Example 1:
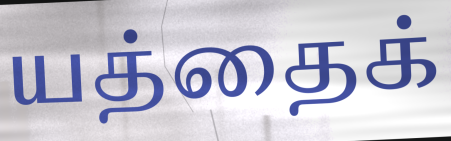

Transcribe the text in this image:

யத்தைக்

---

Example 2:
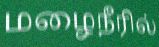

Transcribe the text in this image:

மழைநீரில்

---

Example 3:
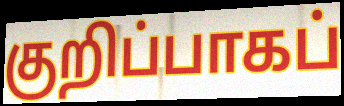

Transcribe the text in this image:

குறிப்பாகப்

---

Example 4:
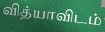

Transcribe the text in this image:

வித்யாவிடம்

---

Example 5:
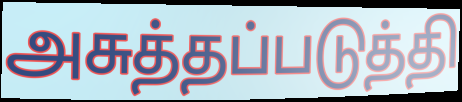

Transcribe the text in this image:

அசுத்தப்படுத்தி